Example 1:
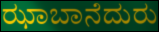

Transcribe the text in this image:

ಝಾಬಾನೆದುರು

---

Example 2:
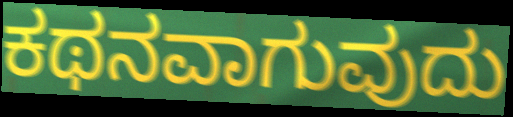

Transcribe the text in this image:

ಕಥನವಾಗುವುದು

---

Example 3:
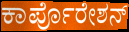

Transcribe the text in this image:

ಕಾರ್ಪೊರೇಶನ್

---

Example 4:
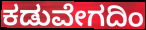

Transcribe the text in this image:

ಕಡುವೇಗದಿಂ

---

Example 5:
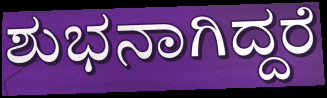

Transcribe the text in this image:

ಶುಭನಾಗಿದ್ದರೆ